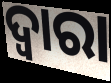
ଦ୍ଵାରା